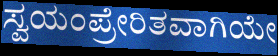
ಸ್ವಯಂಪ್ರೇರಿತವಾಗಿಯೇ